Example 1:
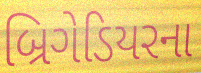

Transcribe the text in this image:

બ્રિગેડિયરના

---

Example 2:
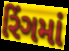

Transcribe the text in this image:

રિંગમાં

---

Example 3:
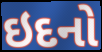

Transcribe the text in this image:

ઇદનો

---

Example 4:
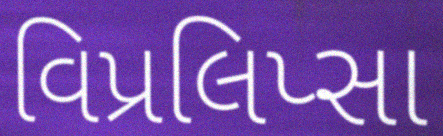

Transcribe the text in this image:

વિપ્રલિપ્સા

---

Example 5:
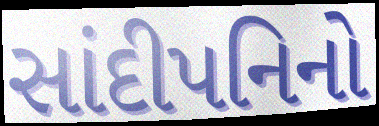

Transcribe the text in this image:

સાંદીપનિનો